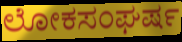
ಲೋಕಸಂಘರ್ಷ